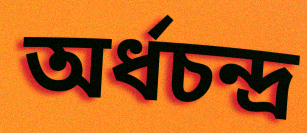
অৰ্ধচন্দ্ৰ